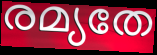
രമ്യതേ